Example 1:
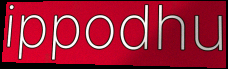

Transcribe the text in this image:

ippodhu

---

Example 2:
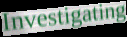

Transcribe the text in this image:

Investigating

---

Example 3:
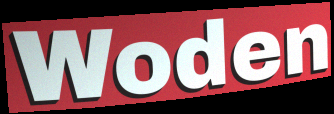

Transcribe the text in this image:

Woden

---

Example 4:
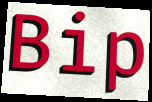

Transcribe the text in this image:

Bip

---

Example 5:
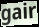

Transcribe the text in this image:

gair